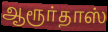
ஆரூர்தாஸ்